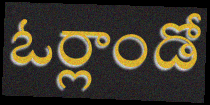
ఓర్లాండో